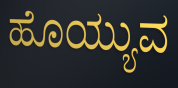
ಹೊಯ್ಯುವ